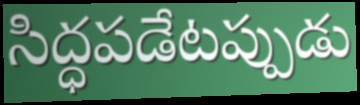
సిద్ధపడేటప్పుడు